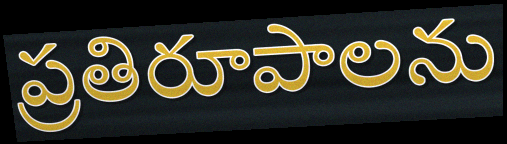
ప్రతిరూపాలను